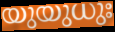
യുയുധുഃ